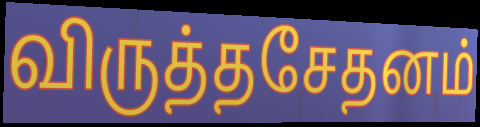
விருத்தசேதனம்